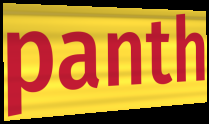
panth